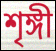
শৃঙ্গী